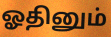
ஓதினும்